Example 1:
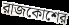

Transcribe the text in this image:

রাজকোশের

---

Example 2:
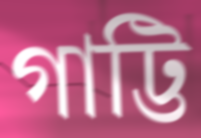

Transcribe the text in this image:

গাট্টি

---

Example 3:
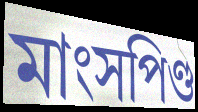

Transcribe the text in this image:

মাংসপিণ্ড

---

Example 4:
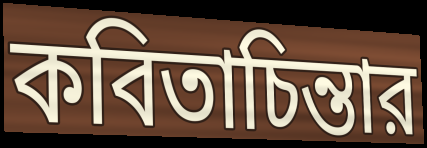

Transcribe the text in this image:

কবিতাচিন্তার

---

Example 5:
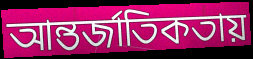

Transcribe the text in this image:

আন্তর্জাতিকতায়